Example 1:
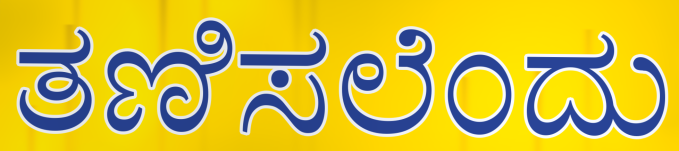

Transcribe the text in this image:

ತಣಿಸಲೆಂದು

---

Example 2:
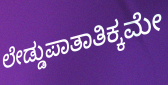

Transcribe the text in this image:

ಲೇಡ್ಡುಪಾತಾತಿಕ್ಕಮೇ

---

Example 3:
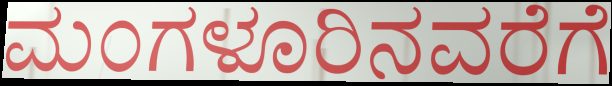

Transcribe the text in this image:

ಮಂಗಳೂರಿನವರೆಗೆ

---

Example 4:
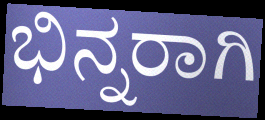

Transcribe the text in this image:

ಭಿನ್ನರಾಗಿ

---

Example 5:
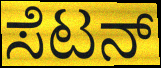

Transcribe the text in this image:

ಸೆಟನ್